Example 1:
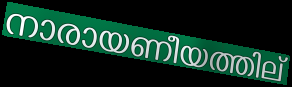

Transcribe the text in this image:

നാരായണീയത്തില്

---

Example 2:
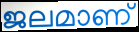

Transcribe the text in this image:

ജലമാണ്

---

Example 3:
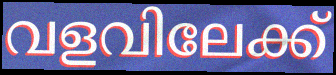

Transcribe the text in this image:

വളവിലേക്ക്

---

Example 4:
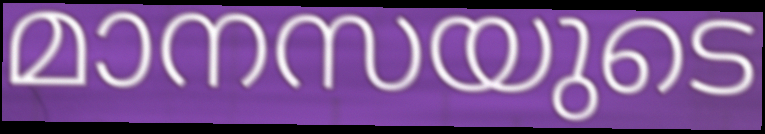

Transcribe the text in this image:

മാനസയുടെ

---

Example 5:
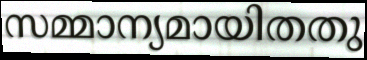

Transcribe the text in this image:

സമ്മാന്യമായിതതു